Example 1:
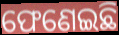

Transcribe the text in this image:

ଫେଣେଇଛି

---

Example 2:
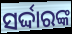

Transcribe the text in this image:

ସର୍ଦ୍ଦାରଙ୍କ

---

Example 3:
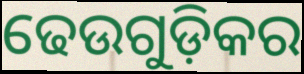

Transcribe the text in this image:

ଢେଉଗୁଡ଼ିକର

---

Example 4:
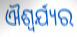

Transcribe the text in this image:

ଐଶ୍ଵର୍ଯ୍ୟର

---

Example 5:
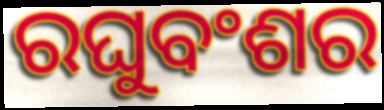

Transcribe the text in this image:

ରଘୁବଂଶର